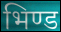
भिण्ड